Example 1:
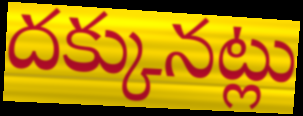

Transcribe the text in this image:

దక్కునట్లు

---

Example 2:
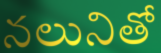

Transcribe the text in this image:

నలునితో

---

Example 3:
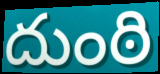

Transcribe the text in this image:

దుంఠి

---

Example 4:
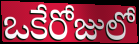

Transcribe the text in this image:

ఒకేరోజులో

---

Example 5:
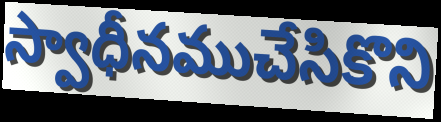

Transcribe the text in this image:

స్వాధీనముచేసికొని